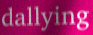
dallying